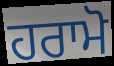
ਹਰਾਮੋ